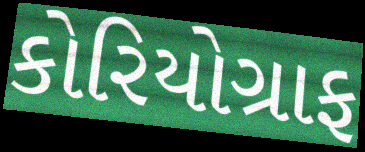
કોરિયોગ્રાફ